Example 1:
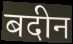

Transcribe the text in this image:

बदीन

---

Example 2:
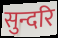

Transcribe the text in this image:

सुन्दरि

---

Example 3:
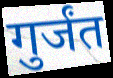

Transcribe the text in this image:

गुर्जंत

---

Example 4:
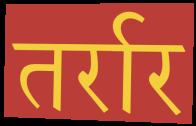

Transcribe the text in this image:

तर्रार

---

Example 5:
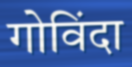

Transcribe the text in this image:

गोविंदा